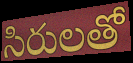
సిరులతో